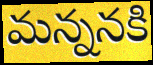
మన్ననకి